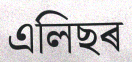
এলিছৰ